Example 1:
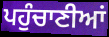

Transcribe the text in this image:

ਪਹੁੰਚਾਣੀਆਂ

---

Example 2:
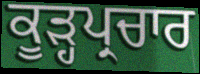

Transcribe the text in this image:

ਕੂੜ੍ਹਪ੍ਰਚਾਰ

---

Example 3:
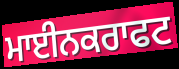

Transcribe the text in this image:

ਮਾਈਨਕਰਾਫਟ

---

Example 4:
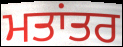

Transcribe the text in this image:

ਮਤਾਂਤਰ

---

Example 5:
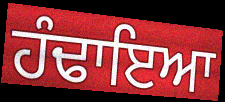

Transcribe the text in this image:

ਹੰਢਾਇਆ